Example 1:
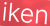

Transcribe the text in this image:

iken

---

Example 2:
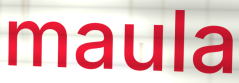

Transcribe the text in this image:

maula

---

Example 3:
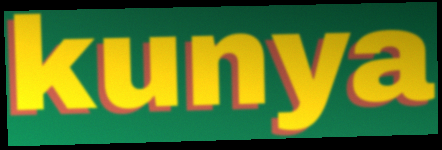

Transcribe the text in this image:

kunya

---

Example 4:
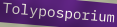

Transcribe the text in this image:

Tolyposporium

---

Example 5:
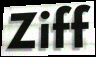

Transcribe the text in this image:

Ziff